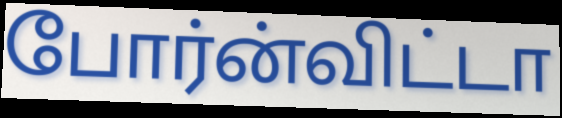
போர்ன்விட்டா